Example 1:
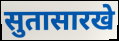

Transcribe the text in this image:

सुतासारखे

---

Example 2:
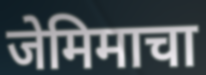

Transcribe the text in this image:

जेमिमाचा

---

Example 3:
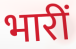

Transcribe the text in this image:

भारीं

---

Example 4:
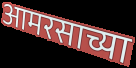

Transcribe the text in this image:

आमरसाच्या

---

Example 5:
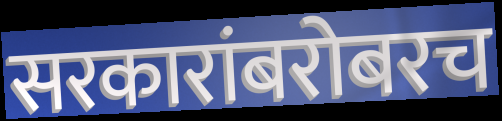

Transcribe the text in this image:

सरकारांबरोबरच